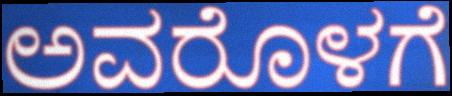
ಅವರೊಳಗೆ